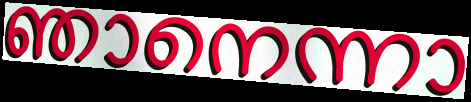
ഞാനെന്നാ